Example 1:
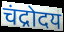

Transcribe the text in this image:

चंद्रोदय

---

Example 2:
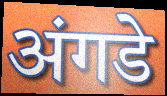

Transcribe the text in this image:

अंगडे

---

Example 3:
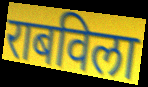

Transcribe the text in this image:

राबविला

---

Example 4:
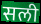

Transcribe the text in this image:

सली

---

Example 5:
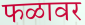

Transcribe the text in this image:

फळावर